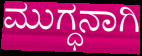
ಮುಗ್ಧನಾಗಿ